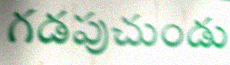
గడపుచుండు